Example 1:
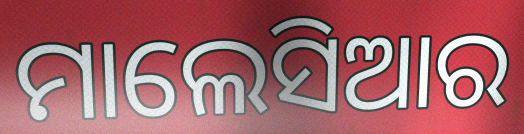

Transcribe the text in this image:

ମାଲେସିଆର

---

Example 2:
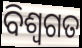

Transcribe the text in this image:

ବିଶ୍ୱଗତ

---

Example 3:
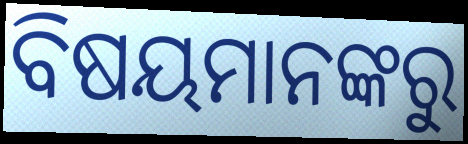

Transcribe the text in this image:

ବିଷୟମାନଙ୍କରୁ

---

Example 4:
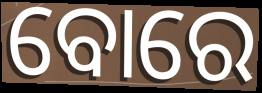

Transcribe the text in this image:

ବୋରେ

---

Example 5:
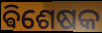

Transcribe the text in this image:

ଵିଶେଷକ